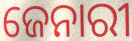
ଜେନାରୀ